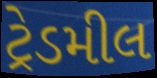
ટ્રેડમીલ